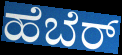
ಹೆಬೆರ್